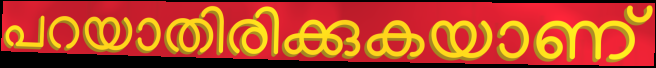
പറയാതിരിക്കുകയാണ്